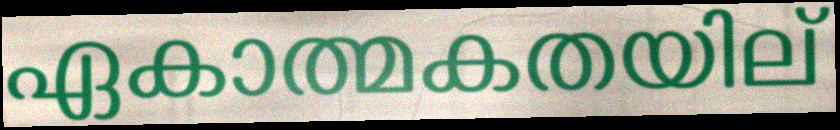
ഏകാത്മകതയില്